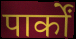
पार्कों